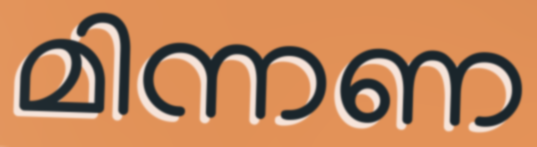
മിന്നണ